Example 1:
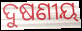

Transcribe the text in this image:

ଦୁଷଣୀୟ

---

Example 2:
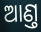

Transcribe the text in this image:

ଆଣ୍ତ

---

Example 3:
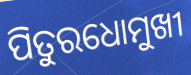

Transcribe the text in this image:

ପିତୁରଧୋମୁଖୀ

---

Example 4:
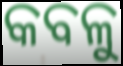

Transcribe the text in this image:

କବଳୁ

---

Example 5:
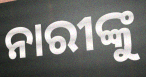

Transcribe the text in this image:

ନାରୀଙ୍କୁ